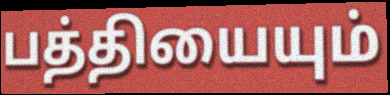
பத்தியையும்